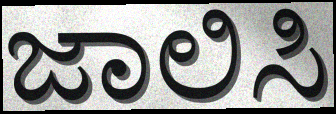
ಜಾಲಿಸಿ